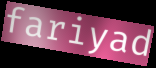
fariyad